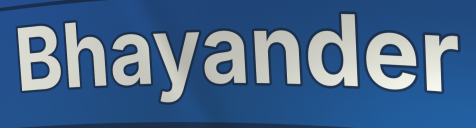
Bhayander